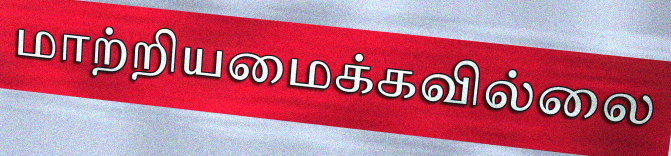
மாற்றியமைக்கவில்லை